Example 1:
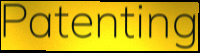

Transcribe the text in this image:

Patenting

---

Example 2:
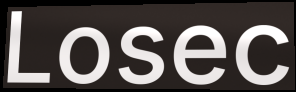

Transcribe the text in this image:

Losec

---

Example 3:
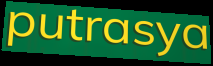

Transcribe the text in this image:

putrasya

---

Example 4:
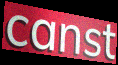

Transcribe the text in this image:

canst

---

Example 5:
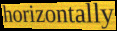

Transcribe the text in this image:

horizontally